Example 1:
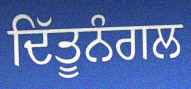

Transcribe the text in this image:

ਦਿੱਤੂਨੰਗਲ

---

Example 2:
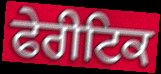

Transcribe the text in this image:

ਫੇਰੀਟਿਕ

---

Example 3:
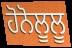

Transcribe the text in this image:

ਹੋਨੋਲੂਲੂ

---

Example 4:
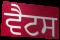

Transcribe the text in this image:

ਵੈਟਸ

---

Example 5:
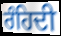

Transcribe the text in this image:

ਰੰਹਿਦੀ